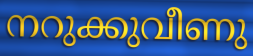
നറുക്കുവീണു